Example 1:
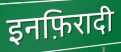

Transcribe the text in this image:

इनफ़िरादी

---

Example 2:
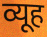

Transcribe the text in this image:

व्‍यूह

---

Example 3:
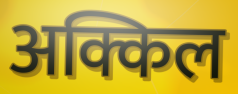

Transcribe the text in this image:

अक्किल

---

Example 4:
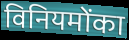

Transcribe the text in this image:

विनियमोंका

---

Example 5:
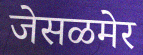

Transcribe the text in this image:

जेसळमेर